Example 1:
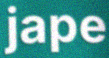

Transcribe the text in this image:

jape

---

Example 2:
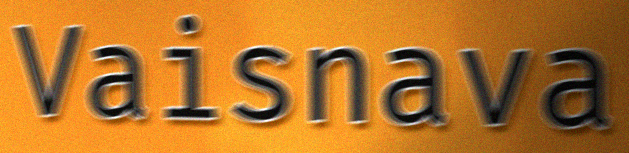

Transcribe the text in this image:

Vaisnava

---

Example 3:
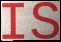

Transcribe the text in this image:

IS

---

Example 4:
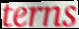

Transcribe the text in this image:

terns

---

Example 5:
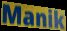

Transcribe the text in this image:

Manik